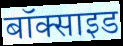
बॉक्साइड